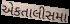
એકતાલીસમા